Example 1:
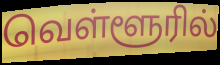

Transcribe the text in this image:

வெள்ளூரில்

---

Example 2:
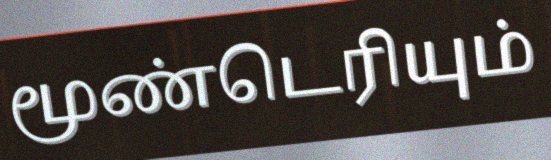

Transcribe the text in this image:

மூண்டெரியும்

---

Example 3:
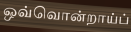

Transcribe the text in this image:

ஒவ்வொன்றாய்ப்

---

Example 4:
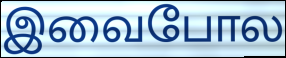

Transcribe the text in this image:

இவைபோல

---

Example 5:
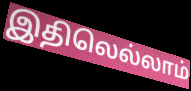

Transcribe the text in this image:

இதிலெல்லாம்